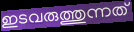
ഇടവരുത്തുന്നത്